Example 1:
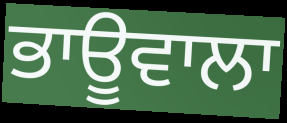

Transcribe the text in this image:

ਭਾਊਵਾਲਾ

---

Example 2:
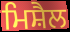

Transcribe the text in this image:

ਮਿਸ਼ੈਲ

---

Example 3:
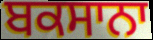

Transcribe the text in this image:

ਬਕਸਾਨਾ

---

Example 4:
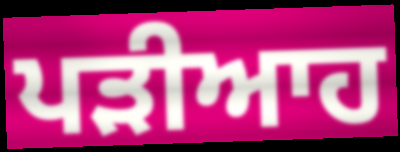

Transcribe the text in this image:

ਪੜੀਆਹ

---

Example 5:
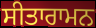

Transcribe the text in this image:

ਸੀਤਾਰਾਮਨ